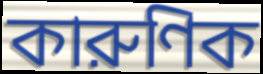
কারুণিক